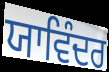
ਯਾਵਿੰਦਰ